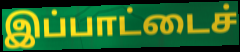
இப்பாட்டைச்